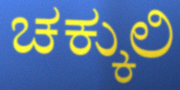
ಚಕ್ಕುಲಿ